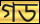
গড